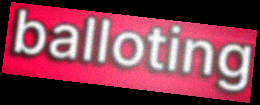
balloting